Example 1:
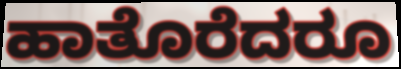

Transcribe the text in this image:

ಹಾತೊರೆದರೂ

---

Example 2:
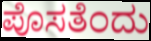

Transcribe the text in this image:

ಪೊಸತೆಂದು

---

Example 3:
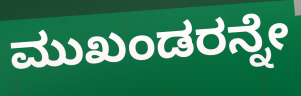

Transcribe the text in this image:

ಮುಖಂಡರನ್ನೇ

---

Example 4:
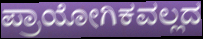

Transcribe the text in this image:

ಪ್ರಾಯೋಗಿಕವಲ್ಲದ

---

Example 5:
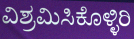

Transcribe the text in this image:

ವಿಶ್ರಮಿಸಿಕೊಳ್ಳಿರಿ